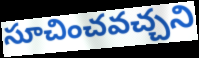
సూచించవచ్చని